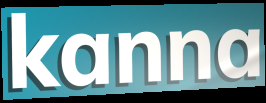
kanna